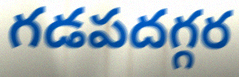
గడపదగ్గర